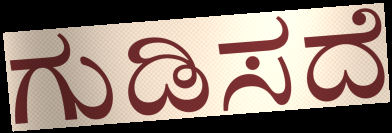
ಗುಡಿಸದೆ